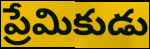
ప్రేమికుడు